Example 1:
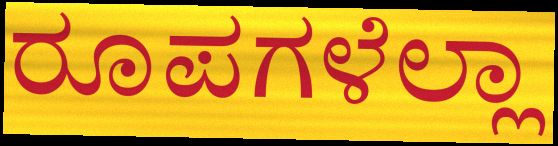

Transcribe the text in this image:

ರೂಪಗಳೆಲ್ಲಾ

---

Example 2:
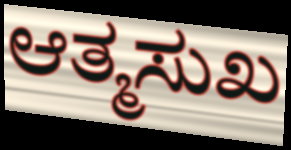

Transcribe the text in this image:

ಆತ್ಮಸುಖ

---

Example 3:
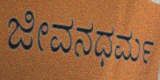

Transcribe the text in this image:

ಜೀವನಧರ್ಮ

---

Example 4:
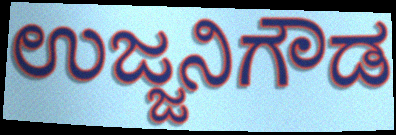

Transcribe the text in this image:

ಉಜ್ಜನಿಗೌಡ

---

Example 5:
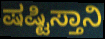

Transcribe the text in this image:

ಷಷ್ಟಿಸ್ತಾನಿ